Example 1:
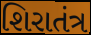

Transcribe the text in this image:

શિરાતંત્ર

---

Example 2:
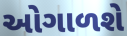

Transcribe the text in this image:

ઓગાળશે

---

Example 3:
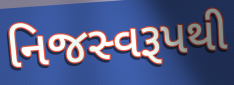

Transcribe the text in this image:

નિજસ્વરૂપથી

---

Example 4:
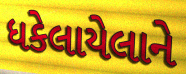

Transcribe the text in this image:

ધકેલાયેલાને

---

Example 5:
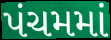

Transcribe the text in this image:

પંચમમાં